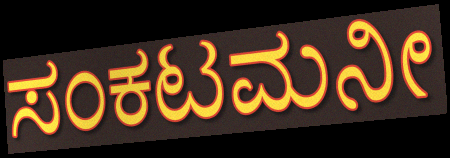
ಸಂಕಟಮನೀ